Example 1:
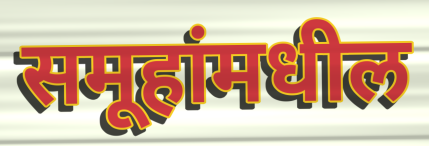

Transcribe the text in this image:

समूहांमधील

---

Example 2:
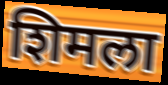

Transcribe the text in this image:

शिमला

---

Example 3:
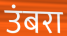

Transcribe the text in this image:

उंबरा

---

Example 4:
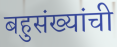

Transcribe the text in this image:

बहुसंख्यांची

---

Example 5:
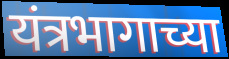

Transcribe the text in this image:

यंत्रभागाच्या